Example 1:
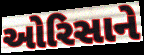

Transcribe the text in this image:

ઓરિસાને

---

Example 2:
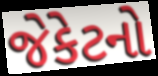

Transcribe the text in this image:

જેકેટનો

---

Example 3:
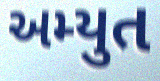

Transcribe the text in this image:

અમ્યુત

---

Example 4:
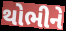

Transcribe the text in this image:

થોભીને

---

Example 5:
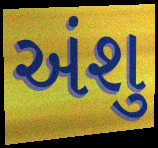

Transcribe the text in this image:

અંશુ